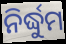
ନିର୍ଦ୍ଧୁମ